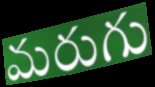
మరుగు